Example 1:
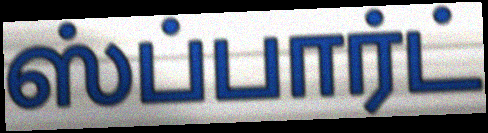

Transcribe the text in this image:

ஸ்ப்பார்ட்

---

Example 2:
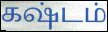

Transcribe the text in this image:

கஷ்டம்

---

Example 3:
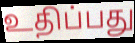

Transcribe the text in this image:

உதிப்பது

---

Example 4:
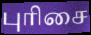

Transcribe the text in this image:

புரிசை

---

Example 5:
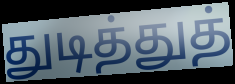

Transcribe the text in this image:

துடித்துத்